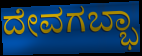
ದೇವಗಬ್ಭಾ